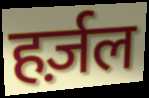
हर्ज़ल